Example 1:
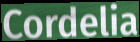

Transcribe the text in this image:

Cordelia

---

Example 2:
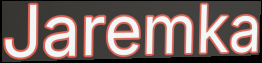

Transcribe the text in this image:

Jaremka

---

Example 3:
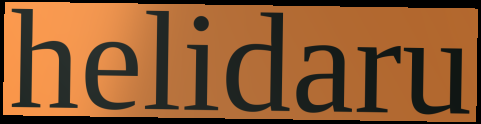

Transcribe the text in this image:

helidaru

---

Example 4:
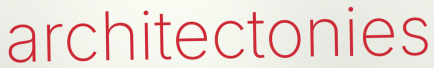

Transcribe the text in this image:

architectonies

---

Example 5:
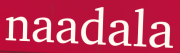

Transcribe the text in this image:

naadala